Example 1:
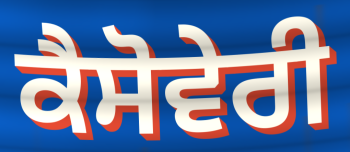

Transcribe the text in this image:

ਕੈਸੋਵੇਰੀ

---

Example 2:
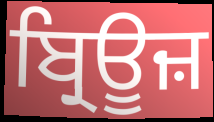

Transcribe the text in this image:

ਬ੍ਰਿਊਜ਼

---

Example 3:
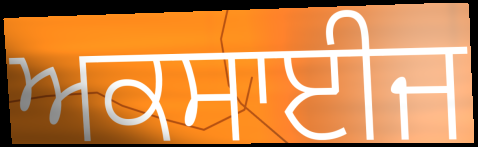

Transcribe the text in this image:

ਅਕਸਾਈਜ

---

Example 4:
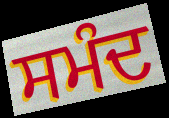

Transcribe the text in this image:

ਸਮੰਦ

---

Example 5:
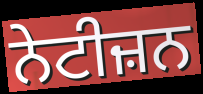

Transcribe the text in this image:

ਨੇਟੀਜ਼ਨ